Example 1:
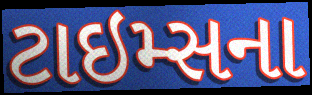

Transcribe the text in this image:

ટાઇમ્સના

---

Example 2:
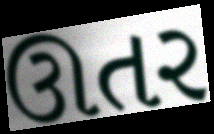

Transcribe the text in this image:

ઊતર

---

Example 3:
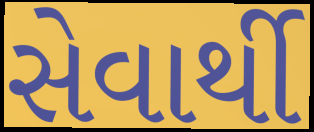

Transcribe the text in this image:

સેવાર્થી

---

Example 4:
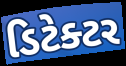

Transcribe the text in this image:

ડિટેક્ટર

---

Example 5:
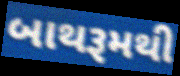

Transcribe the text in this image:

બાથરૂમથી